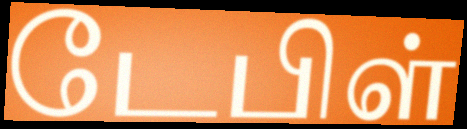
டேபிள்